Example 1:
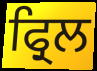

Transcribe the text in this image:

ਫ੍ਰਿਲ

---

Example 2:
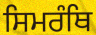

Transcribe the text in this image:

ਸਿਮਰੰਥਿ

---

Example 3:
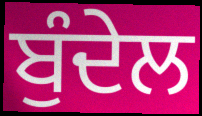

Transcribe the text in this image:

ਬੁੰਦੇਲ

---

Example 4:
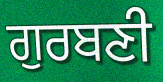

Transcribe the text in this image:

ਗੁਰਬਣੀ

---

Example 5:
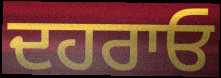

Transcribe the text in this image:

ਦਹਰਾਓ